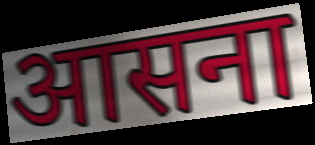
आसना